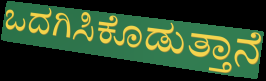
ಒದಗಿಸಿಕೊಡುತ್ತಾನೆ